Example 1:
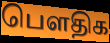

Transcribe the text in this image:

பெளதிக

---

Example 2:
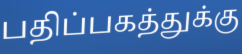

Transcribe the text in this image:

பதிப்பகத்துக்கு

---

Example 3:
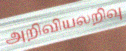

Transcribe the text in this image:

அறிவியலறிவு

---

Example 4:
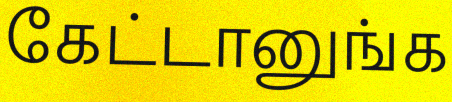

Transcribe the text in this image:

கேட்டானுங்க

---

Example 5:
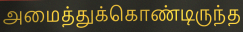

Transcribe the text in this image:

அமைத்துக்கொண்டிருந்த